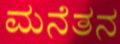
ಮನೆತನ